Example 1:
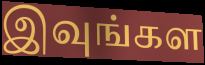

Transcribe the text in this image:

இவுங்கள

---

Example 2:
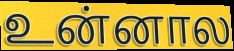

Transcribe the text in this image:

உன்னால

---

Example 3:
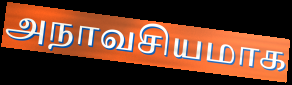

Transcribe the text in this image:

அநாவசியமாக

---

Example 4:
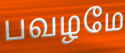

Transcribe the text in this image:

பவழமே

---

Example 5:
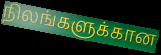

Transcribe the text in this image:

நிலங்களுக்கான